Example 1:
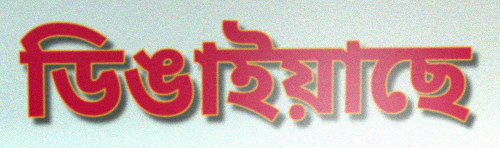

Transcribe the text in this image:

ডিঙাইয়াছে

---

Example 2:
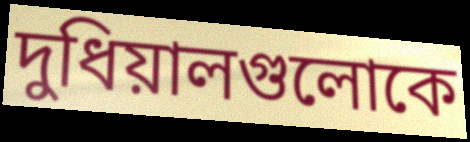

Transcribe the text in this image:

দুধিয়ালগুলোকে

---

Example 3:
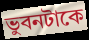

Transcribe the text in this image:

ভুবনটাকে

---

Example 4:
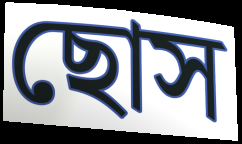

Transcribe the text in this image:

ছোস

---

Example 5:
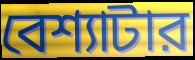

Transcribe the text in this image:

বেশ্যাটার